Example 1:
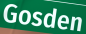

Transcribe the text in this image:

Gosden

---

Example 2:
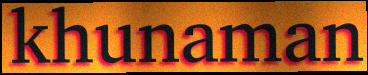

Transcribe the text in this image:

khunaman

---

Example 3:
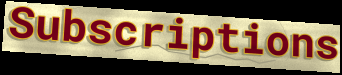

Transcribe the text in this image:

Subscriptions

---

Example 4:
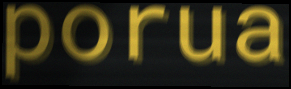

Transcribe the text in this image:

porua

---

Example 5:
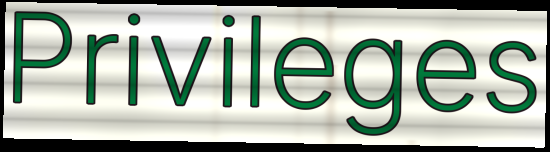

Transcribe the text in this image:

Privileges